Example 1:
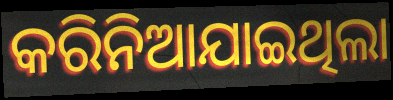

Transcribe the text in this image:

କରିନିଆଯାଇଥିଲା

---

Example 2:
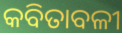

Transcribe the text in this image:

କବିତାବଳୀ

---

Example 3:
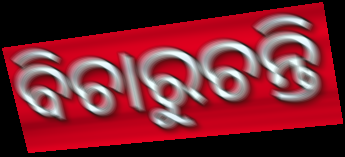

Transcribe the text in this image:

ବିଚାରୁଚନ୍ତି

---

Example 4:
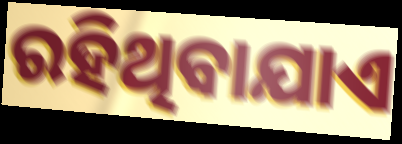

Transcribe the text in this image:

ରହିଥିବାଯାଏ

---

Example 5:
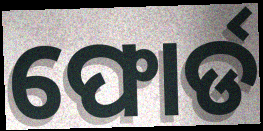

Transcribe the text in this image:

ଫୋର୍ଡ